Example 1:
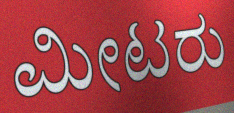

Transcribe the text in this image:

ಮೀಟರು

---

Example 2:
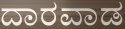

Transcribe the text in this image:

ದಾರವಾಡ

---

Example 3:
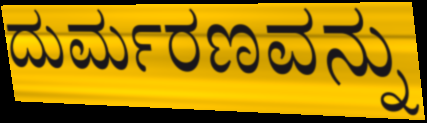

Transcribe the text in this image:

ದುರ್ಮರಣವನ್ನು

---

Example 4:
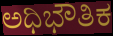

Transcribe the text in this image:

ಅಧಿಭೌತಿಕ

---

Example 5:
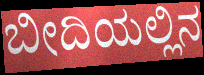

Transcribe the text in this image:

ಬೀದಿಯಲ್ಲಿನ